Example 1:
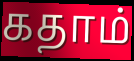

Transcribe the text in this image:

கதாம்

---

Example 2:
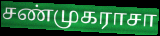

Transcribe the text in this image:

சண்முகராசா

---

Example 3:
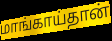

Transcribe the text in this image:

மாங்காய்தான்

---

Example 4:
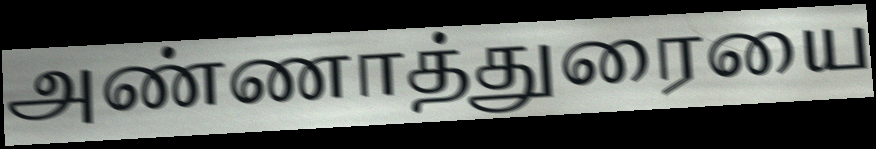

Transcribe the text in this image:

அண்ணாத்துரையை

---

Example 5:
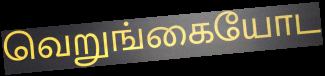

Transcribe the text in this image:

வெறுங்கையோட